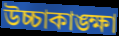
উচ্চাকাঙ্ক্ষা